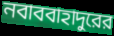
নবাববাহাদুরের